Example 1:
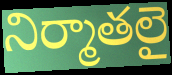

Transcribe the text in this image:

నిర్మాతలై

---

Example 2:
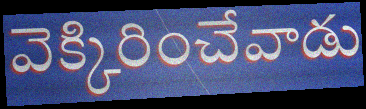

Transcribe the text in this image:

వెక్కిరించేవాడు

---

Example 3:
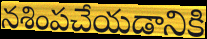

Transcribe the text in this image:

నశింపచేయడానికి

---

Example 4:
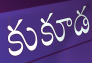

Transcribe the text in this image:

కుకూడ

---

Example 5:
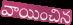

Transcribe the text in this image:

వాయించిన